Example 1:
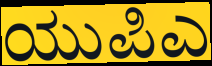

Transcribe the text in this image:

ಯುಪಿಎ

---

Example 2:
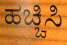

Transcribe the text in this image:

ಹಚ್ಚಿಸಿ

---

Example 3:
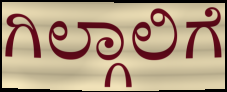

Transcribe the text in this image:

ಗಿಲ್ಗಾಲಿಗೆ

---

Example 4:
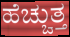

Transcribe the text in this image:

ಹೆಚ್ಚುತ್ತ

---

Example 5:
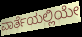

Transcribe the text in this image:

ವಾರ್ತೆಯಲ್ಲಿಯೇ